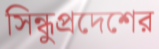
সিন্ধুপ্রদেশের